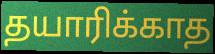
தயாரிக்காத